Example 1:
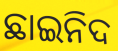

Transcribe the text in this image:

ଛାଇନିଦ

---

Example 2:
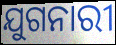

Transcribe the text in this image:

ଯୁଗନାରୀ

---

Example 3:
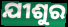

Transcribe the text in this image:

ଯୀଶୁର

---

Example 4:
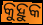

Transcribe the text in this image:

କୁହୁକ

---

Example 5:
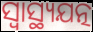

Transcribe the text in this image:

ସ୍ୱାସ୍ଥ୍ୟଯତ୍ନ